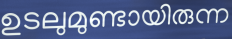
ഉടലുമുണ്ടായിരുന്ന